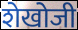
शेखोजी